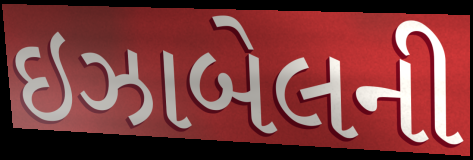
ઇઝાબેલની